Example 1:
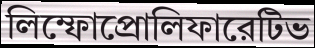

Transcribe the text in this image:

লিম্ফোপ্রোলিফারেটিভ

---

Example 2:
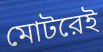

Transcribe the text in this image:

মোটরেই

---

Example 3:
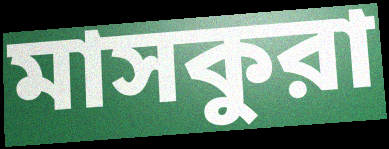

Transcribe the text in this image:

মাসকুরা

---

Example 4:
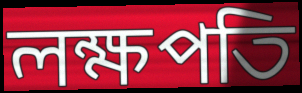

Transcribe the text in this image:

লক্ষপতি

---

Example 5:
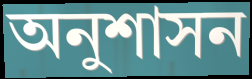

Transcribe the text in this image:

অনুশাসন